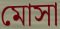
মোসা